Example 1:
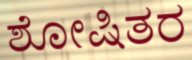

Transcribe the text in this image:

ಶೋಷಿತರ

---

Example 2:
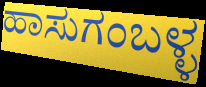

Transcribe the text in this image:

ಹಾಸುಗಂಬಳ್ಳ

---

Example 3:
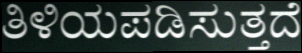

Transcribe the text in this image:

ತಿಳಿಯಪಡಿಸುತ್ತದೆ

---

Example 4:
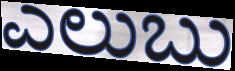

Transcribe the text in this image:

ಎಲುಬು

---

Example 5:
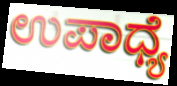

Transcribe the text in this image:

ಉಪಾಧ್ಯೆ